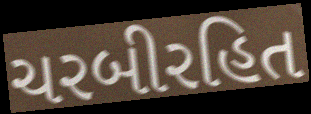
ચરબીરહિત